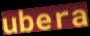
ubera